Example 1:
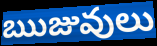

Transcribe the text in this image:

ఋజువులు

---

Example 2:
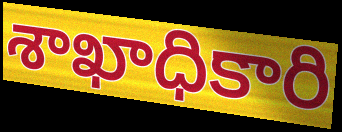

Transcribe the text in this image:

శాఖాధికారి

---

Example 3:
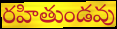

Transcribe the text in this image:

రహితుండవు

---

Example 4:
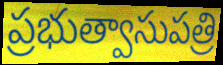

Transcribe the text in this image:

ప్రభుత్వాసుపత్రి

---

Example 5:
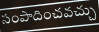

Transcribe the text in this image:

సంపాదించవచ్చు